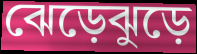
ঝেড়েঝুড়ে